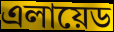
এলায়েড